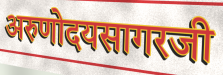
अरुणोदयसागरजी